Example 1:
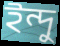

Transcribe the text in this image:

ইন্দু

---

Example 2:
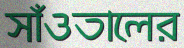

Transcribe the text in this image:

সাঁওতালের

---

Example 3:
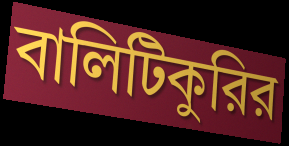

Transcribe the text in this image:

বালিটিকুরির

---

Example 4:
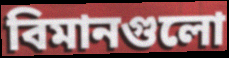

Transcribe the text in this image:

বিমানগুলো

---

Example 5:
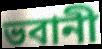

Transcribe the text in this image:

ভবানী